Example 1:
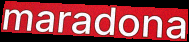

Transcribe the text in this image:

maradona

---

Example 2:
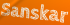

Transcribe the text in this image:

Sanskar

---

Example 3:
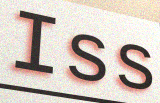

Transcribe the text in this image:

Iss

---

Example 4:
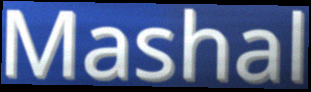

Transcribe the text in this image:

Mashal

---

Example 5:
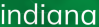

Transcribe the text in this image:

indiana